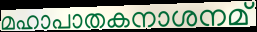
മഹാപാതകനാശനമ്